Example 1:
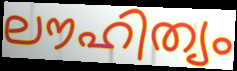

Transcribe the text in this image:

ലൗഹിത്യം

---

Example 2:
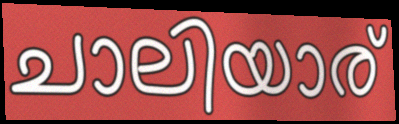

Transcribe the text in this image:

ചാലിയാര്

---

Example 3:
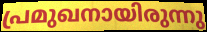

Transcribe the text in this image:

പ്രമുഖനായിരുന്നു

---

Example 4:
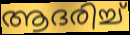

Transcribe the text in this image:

ആദരിച്ച്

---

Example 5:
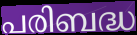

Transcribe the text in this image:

പരിബദ്ധ